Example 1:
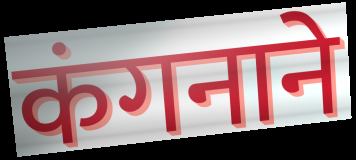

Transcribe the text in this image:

कंगनाने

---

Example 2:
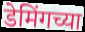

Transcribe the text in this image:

डेमिंगच्या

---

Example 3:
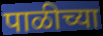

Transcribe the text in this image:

पाळीच्या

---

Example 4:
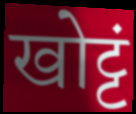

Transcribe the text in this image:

खोट्टं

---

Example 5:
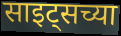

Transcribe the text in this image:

साइट्सच्या